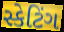
સ્કેટિંગ